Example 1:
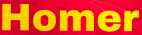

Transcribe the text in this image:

Homer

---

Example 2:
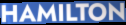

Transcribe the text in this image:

HAMILTON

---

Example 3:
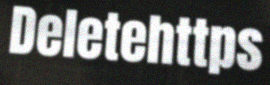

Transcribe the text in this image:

Deletehttps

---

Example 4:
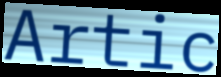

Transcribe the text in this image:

Artic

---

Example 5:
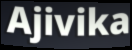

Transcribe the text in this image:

Ajivika